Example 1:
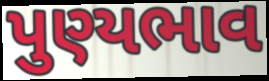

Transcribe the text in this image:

પુણ્યભાવ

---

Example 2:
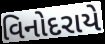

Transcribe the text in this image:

વિનોદરાયે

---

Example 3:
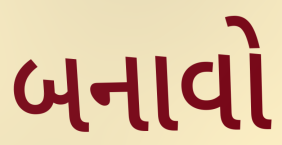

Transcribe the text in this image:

બનાવો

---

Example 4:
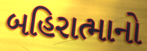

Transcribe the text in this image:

બહિરાત્માનો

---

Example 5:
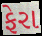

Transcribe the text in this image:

ફેરા